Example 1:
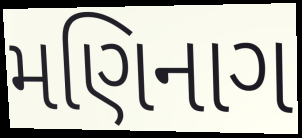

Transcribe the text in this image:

મણિનાગ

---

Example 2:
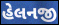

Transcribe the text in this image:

હેલનજી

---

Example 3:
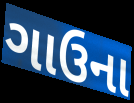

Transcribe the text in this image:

ગાઉના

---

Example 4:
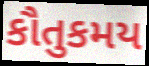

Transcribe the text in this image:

કૌતુકમય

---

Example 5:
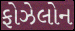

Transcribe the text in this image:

ફોઝેલોન